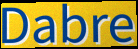
Dabre